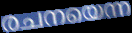
രചനയെന്ന